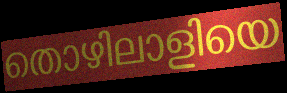
തൊഴിലാളിയെ